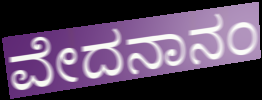
ವೇದನಾನಂ